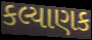
કલ્યાણક